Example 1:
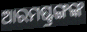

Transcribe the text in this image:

ଆରମଷ୍ଟ୍ରଙ୍ଗଙ୍କ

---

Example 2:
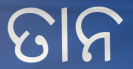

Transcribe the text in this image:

ତାନ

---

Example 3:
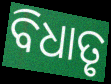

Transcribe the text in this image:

ବିଧାତୃ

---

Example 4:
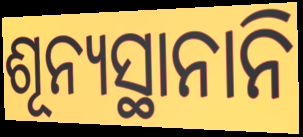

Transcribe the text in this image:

ଶୂନ୍ୟସ୍ଥାନାନି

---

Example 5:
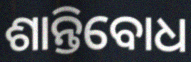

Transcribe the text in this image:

ଶାନ୍ତିବୋଧ